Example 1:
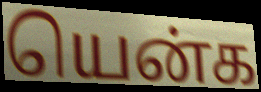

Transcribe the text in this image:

யென்க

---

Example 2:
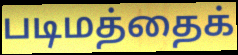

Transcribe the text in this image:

படிமத்தைக்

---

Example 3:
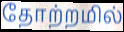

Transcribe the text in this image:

தோற்றமில்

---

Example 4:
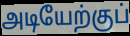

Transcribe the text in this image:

அடியேற்குப்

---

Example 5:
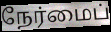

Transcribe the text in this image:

நேர்மைப்